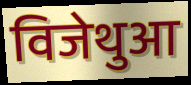
विजेथुआ